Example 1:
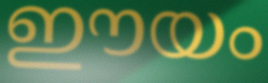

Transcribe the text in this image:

ഈയം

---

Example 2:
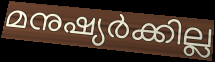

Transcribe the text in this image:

മനുഷ്യർക്കില്ല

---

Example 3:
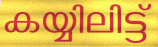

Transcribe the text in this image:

കയ്യിലിട്ട്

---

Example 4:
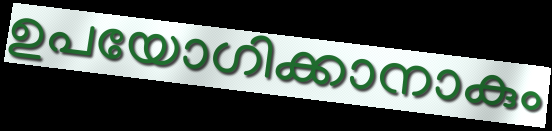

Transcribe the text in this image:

ഉപയോഗിക്കാനാകും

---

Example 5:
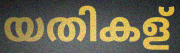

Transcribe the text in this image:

യതികള്